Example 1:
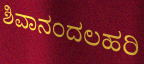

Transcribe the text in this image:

ಶಿವಾನಂದಲಹರಿ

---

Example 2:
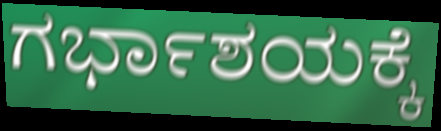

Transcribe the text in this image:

ಗರ್ಭಾಶಯಕ್ಕೆ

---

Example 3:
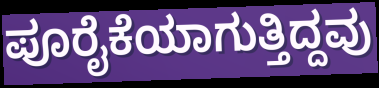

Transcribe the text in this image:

ಪೂರೈಕೆಯಾಗುತ್ತಿದ್ದವು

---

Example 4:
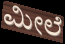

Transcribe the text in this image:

ಮೀಲೆ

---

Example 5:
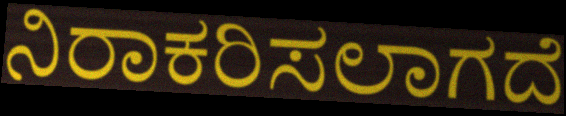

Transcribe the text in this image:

ನಿರಾಕರಿಸಲಾಗದೆ